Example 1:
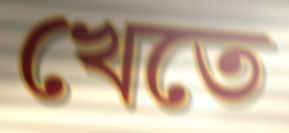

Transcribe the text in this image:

খেতে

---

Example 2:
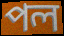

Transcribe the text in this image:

পল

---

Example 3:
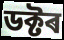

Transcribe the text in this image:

ডক্টৰ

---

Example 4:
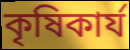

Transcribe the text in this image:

কৃষিকাৰ্য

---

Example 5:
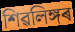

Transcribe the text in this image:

শিৱলিঙ্গৰ